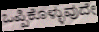
ಒಪ್ಪಿಕೊಳ್ಳುವುದೇ